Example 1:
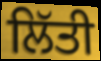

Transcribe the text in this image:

ਲਿੱਤੀ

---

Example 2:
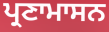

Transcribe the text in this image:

ਪ੍ਰਣਾਮਾਸਨ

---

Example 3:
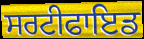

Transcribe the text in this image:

ਸਰਟੀਫਾਇਡ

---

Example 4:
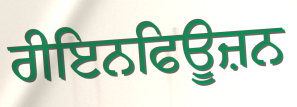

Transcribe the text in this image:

ਰੀਇਨਫਿਊਜ਼ਨ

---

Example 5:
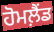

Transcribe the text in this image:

ਹੋਮਲ਼ੈਂਡ